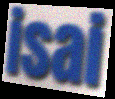
isai